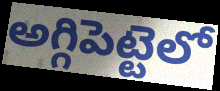
అగ్గిపెట్టెలో